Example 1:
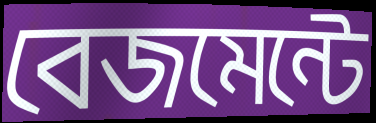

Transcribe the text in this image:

বেজমেন্টে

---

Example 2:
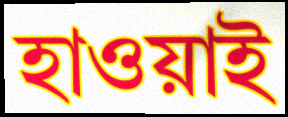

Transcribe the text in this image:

হাওয়াই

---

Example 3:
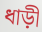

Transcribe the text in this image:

ধাড়ী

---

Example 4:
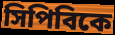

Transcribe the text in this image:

সিপিবিকে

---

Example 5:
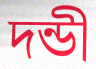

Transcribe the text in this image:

দন্ডী